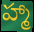
హ్మా